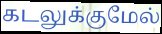
கடலுக்குமேல்